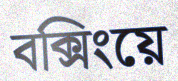
বক্সিংয়ে